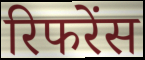
रिफरेंस